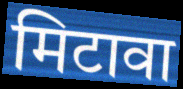
मिटावा